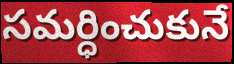
సమర్ధించుకునే